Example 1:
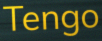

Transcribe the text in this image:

Tengo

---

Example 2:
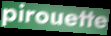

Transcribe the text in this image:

pirouette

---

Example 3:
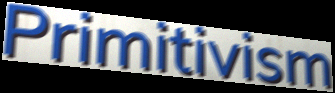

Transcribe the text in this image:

Primitivism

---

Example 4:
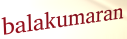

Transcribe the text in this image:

balakumaran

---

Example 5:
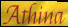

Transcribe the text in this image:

Athina